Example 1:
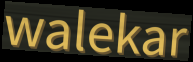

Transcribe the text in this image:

walekar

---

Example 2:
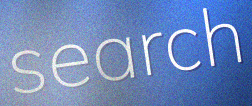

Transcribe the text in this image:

search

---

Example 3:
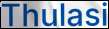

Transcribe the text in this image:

Thulasi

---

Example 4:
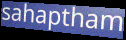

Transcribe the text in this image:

sahaptham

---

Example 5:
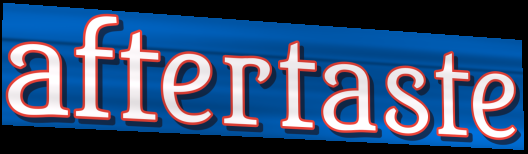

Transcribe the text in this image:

aftertaste